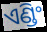
ଏଣ୍ଡିଂ